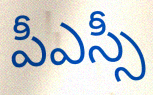
పీఎస్సీ